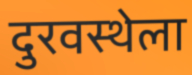
दुरवस्थेला